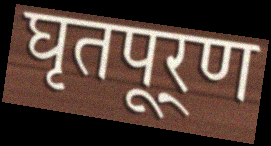
घृतपूर्ण